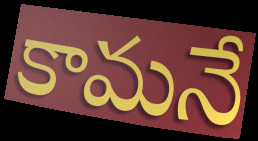
కామనే